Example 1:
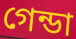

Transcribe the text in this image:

গেন্ডা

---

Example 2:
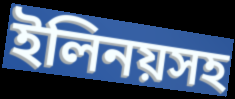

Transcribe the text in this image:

ইলিনয়সহ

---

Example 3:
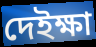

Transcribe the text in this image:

দেইক্ষা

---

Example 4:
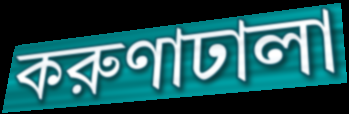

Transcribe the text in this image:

করুণাঢালা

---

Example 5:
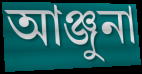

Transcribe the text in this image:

আঞ্জুনা